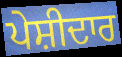
ਪੇਸ਼ੀਦਾਰ